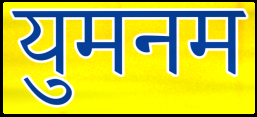
युमनम